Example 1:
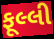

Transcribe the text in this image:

ફૂલ્લી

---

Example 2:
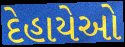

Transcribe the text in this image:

દેહાયેઓ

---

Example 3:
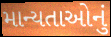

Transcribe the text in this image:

માન્યતાઓનું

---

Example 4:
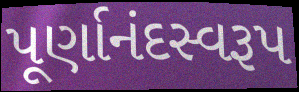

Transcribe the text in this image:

પૂર્ણાનંદસ્વરૂપ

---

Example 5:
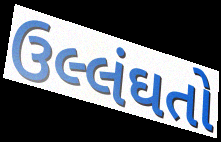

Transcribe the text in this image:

ઉલ્લંઘતો